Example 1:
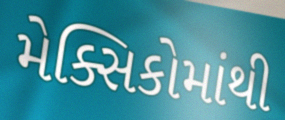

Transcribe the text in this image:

મેક્સિકોમાંથી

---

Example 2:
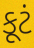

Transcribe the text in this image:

કૂટં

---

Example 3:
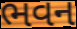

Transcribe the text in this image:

ભવન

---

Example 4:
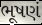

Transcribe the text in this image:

ભૂષણં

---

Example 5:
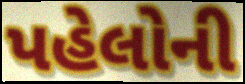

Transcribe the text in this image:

પહેલોની